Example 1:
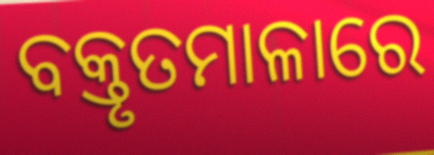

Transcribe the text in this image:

ବକ୍ତୃତମାଳାରେ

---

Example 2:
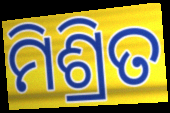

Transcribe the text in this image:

ମିଶ୍ରିତ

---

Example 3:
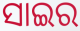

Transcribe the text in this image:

ସାଇର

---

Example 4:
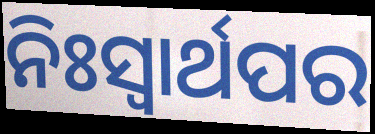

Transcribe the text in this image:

ନିଃସ୍ୱାର୍ଥପର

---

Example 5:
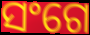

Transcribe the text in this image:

ସଂଗେ